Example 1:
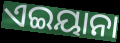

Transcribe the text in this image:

ଏଇୟାନା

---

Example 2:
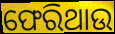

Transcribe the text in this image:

ଫେରିଥାଉ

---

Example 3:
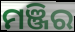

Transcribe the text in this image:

ମଞ୍ଜିର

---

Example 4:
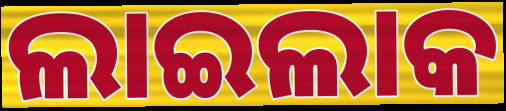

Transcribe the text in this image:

ଲାଇଲାକ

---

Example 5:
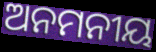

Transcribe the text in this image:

ଅନମନୀୟ